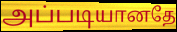
அப்படியானதே